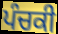
ਪੰਚਕੀ